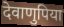
देवाणुपिया